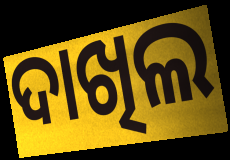
ଦାଖିଲ